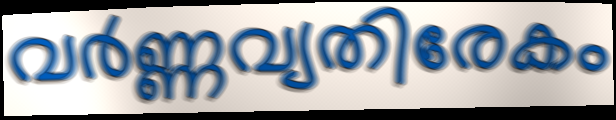
വർണ്ണവ്യതിരേകം